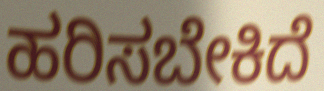
ಹರಿಸಬೇಕಿದೆ